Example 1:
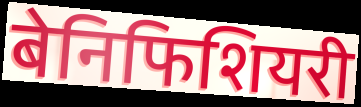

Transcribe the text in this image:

बेनिफिशियरी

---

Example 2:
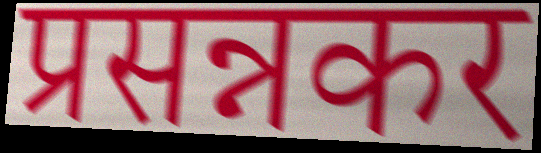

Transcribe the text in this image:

प्रसन्नकर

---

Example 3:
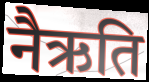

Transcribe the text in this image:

नैऋति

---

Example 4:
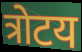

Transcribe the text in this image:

त्रोटय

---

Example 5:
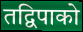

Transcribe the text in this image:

तद्विपाको